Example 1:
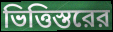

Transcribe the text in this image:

ভিত্তিস্তরের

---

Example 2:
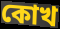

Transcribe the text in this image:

কোখ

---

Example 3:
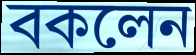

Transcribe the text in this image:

বকলেন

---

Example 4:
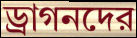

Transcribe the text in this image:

ড্রাগনদের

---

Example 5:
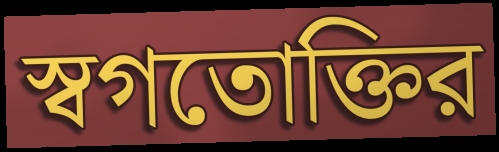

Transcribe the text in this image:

স্বগতোক্তির